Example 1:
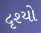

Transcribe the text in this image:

દૃશ્યો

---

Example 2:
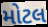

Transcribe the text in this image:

મોટલ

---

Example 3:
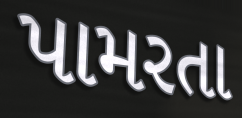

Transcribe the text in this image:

પામરતા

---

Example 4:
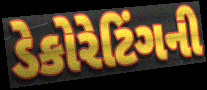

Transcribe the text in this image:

ડેકોરેટિંગની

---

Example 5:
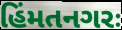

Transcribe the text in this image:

હિંમતનગરઃ